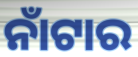
ନାଁଟାର